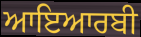
ਆਇਆਰਬੀ